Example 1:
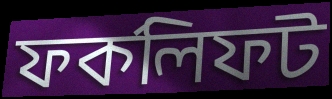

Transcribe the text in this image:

ফর্কলিফট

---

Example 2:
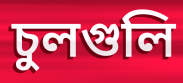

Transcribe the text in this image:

চুলগুলি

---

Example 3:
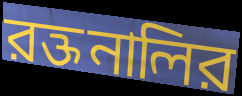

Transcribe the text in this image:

রক্তনালির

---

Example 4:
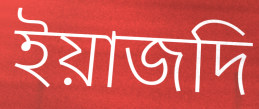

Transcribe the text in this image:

ইয়াজদি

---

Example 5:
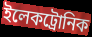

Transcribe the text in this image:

ইলেকট্রোনিক